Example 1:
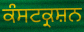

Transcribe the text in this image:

ਕੰਸਟਕ੍ਰਸ਼ਨ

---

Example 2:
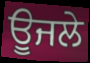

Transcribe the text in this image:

ਊਜਲੇ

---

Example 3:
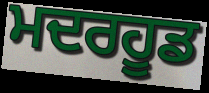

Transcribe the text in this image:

ਮਦਰਹੂਡ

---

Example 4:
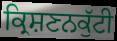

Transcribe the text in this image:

ਕ੍ਰਿਸ਼ਣਨਕੁੱਟੀ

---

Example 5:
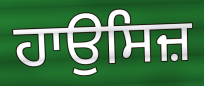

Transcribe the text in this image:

ਹਾਉਸਿਜ਼